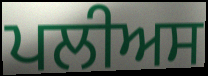
ਪਲੀਅਸ